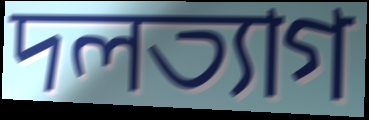
দলত্যাগ